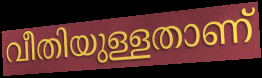
വീതിയുള്ളതാണ്